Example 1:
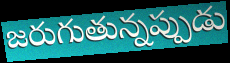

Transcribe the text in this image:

జరుగుతున్నప్పుడు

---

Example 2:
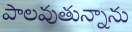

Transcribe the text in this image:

పాలవుతున్నాను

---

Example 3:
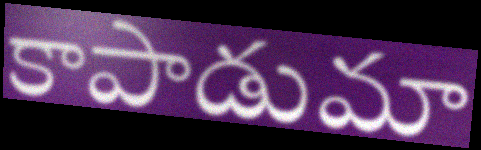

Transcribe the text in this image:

కాపాడుమా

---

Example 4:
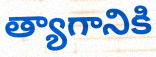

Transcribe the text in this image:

త్యాగానికి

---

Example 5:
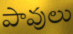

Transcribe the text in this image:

పావులు